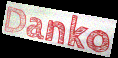
Danko